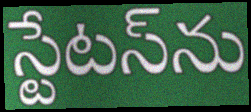
స్టేటస్‌ను